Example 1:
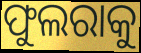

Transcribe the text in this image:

ଫୁଲରାକୁ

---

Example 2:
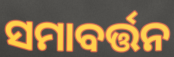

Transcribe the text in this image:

ସମାବର୍ତ୍ତନ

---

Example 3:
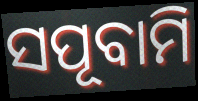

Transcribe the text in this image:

ସପୂବାମି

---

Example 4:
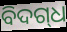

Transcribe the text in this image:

ବିଦଗ୍‍ଧ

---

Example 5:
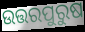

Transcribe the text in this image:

ଉତ୍ତରପୁରୁଷ